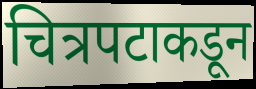
चित्रपटाकडून